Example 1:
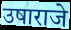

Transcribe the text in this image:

उषाराजे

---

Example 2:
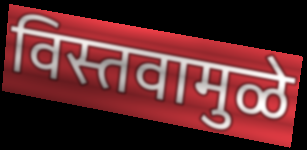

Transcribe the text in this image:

विस्तवामुळे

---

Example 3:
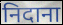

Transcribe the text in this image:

निदाना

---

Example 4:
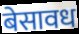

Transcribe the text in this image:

बेसावध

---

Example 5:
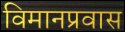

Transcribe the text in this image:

विमानप्रवास